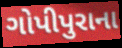
ગોપીપુરાના